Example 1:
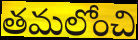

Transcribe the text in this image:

తమలోంచి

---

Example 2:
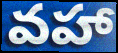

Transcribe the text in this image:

వహా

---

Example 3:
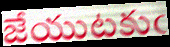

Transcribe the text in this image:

జేయుటకుఁ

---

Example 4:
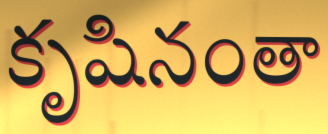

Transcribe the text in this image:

కృషినంతా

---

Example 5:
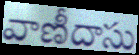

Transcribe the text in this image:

వాణీదాసు